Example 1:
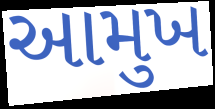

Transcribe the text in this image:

આમુખ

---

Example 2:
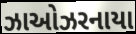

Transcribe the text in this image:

ઝાઓઝરનાયા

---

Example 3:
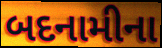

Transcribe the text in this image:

બદનામીના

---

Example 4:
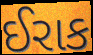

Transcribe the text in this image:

ઈરાક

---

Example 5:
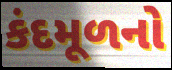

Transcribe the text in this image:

કંદમૂળનો